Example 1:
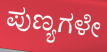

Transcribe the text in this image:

ಪುಣ್ಯಗಳೇ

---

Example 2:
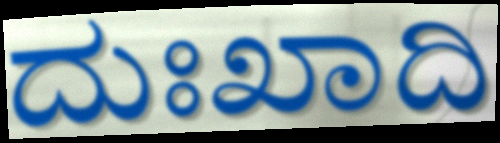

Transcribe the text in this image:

ದುಃಖಾದಿ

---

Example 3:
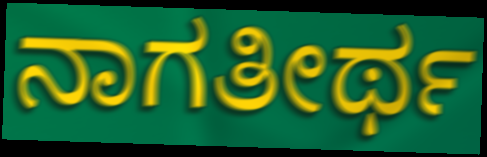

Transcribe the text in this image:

ನಾಗತೀರ್ಥ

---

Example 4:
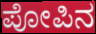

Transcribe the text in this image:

ಪೋಪಿನ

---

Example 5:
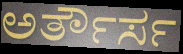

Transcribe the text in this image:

ಅರ್ತೌರ್ಸ